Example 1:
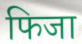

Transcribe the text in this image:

फिजा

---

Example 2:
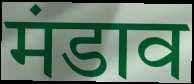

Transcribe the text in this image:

मंडाव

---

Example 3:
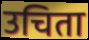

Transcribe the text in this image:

उचिता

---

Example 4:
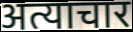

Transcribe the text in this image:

अत्याचार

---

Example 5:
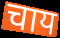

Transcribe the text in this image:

चाय